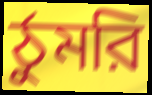
ঠুমরি